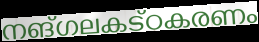
നങ്ഗലകട്ഠകരണം